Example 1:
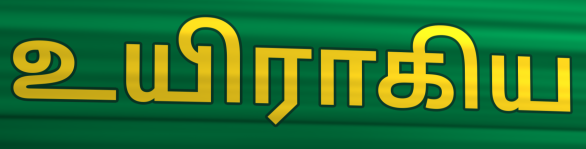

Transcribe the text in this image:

உயிராகிய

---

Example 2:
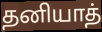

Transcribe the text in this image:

தனியாத்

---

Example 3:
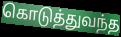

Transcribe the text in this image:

கொடுத்துவந்த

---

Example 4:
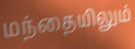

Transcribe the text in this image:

மந்தையிலும்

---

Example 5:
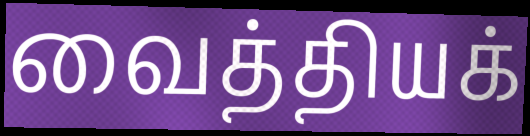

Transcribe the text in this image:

வைத்தியக்